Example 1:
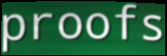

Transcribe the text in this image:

proofs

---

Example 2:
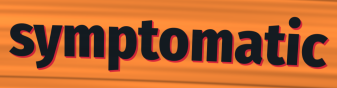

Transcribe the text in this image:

symptomatic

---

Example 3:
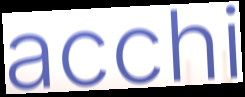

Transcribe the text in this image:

acchi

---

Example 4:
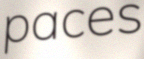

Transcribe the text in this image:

paces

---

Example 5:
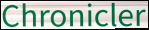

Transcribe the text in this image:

Chronicler